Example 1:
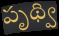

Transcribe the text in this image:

పృథ్వి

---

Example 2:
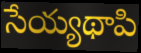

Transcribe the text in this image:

సేయ్యథాపి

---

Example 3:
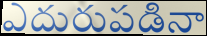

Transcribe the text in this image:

ఎదురుపడినా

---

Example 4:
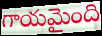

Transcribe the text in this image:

గాయమైంది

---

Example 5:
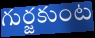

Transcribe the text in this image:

గుర్జకుంట